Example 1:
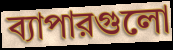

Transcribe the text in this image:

ব্যাপারগুলো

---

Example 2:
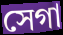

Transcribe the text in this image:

সেগা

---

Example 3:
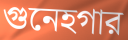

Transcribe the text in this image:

গুনেহগার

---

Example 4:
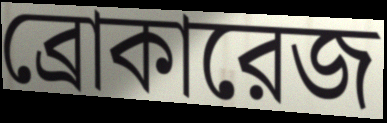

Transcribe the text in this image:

ব্রোকারেজ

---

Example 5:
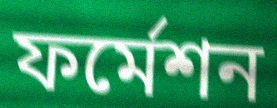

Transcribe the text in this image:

ফর্মেশন